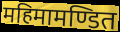
महिमामण्डित